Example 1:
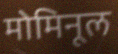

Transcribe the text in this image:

मोमिनूल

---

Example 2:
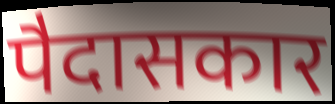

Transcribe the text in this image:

पैदासकार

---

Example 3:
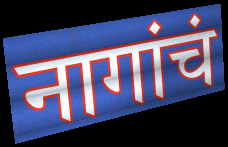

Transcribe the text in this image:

नागांचं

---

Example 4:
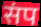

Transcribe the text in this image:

संप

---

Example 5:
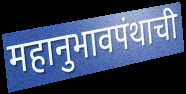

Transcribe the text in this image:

महानुभावपंथाची